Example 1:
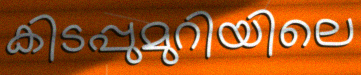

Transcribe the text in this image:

കിടപ്പുമുറിയിലെ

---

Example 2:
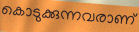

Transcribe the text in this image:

കൊടുക്കുന്നവരാണ്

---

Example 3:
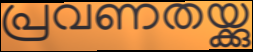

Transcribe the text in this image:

പ്രവണതയ്ക്കു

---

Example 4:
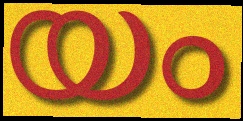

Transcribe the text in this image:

യം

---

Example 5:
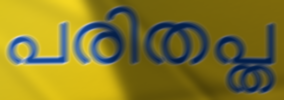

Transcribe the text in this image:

പരിതപ്ത